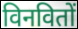
विनवितों